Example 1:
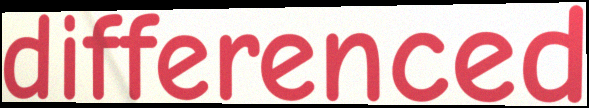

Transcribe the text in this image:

differenced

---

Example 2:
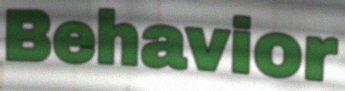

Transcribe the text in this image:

Behavior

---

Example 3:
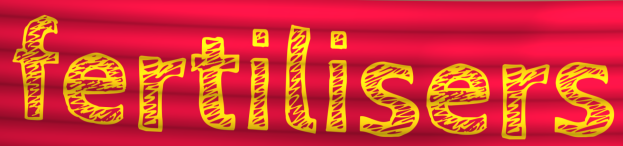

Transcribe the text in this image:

fertilisers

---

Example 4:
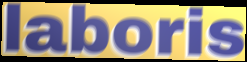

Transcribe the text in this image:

laboris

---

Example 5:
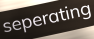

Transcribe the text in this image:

seperating